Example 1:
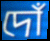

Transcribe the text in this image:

দোঁ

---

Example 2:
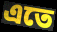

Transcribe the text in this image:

এতে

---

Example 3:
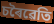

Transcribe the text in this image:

চৰৈৱেতি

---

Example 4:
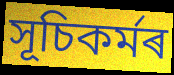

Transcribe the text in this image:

সূচিকৰ্মৰ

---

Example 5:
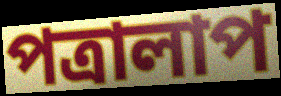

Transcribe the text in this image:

পত্ৰালাপ